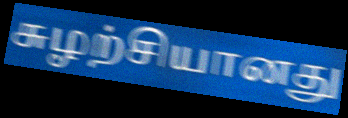
சுழற்சியானது